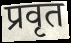
प्रवृत